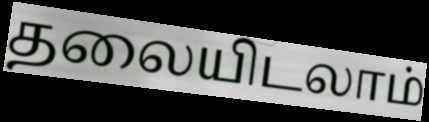
தலையிடலாம்